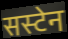
सस्टेन